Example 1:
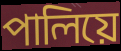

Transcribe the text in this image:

পালিয়ে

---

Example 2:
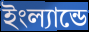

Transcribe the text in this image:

ইংল্যান্ডে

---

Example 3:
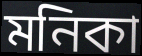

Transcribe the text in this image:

মনিকা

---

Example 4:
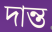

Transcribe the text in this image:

দান্ত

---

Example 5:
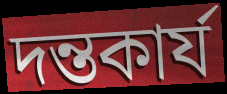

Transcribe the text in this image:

দন্তকার্য